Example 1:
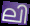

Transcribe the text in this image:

ലി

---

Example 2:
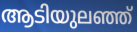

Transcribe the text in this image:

ആടിയുലഞ്ഞ്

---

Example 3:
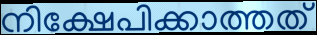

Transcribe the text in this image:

നിക്ഷേപിക്കാത്തത്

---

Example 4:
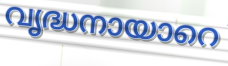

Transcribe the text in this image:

വൃദ്ധനായാറെ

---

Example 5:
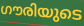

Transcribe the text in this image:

ഗൗരിയുടെ